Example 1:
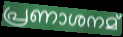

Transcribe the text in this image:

പ്രണാശനമ്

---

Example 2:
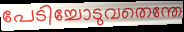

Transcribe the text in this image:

പേടിച്ചോടുവതെന്തേ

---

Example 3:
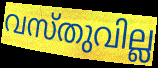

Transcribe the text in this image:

വസ്തുവില്ല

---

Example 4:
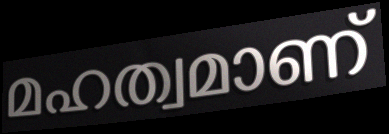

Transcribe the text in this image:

മഹത്വമാണ്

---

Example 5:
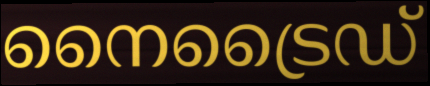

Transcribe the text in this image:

നൈട്രൈഡ്